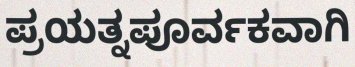
ಪ್ರಯತ್ನಪೂರ್ವಕವಾಗಿ